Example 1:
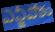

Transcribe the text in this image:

ఎన్జీవోకు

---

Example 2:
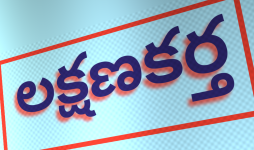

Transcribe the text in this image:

లక్షణకర్త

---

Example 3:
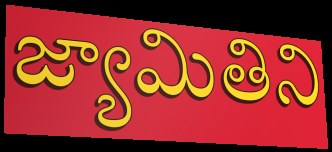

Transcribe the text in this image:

జ్యామితిని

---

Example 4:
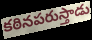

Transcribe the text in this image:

కఠినపరుస్తాడు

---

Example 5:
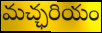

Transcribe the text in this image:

మచ్ఛరియం